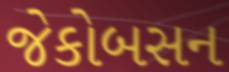
જેકોબસન